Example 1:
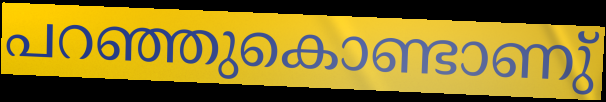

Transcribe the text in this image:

പറഞ്ഞുകൊണ്ടാണു്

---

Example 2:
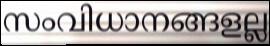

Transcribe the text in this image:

സംവിധാനങ്ങളല്ല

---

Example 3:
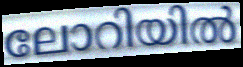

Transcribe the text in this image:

ലോറിയിൽ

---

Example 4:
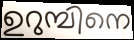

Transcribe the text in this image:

ഉറുമ്പിനെ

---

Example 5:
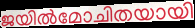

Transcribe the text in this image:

ജയിൽമോചിതയായി